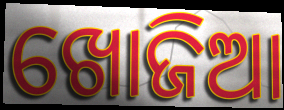
ଖୋଜିଆ